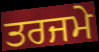
ਤਰਜਮੇ